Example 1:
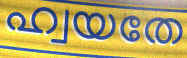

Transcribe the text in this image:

ഹ്വയതേ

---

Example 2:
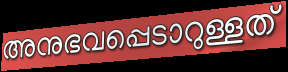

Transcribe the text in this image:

അനുഭവപ്പെടാറുള്ളത്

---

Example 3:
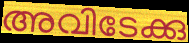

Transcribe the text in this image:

അവിടേക്കു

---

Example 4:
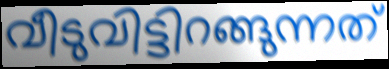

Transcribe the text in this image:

വീടുവിട്ടിറങ്ങുന്നത്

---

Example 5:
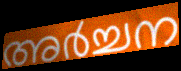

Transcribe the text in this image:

അർച്ചന